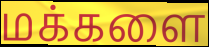
மக்களை